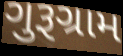
ગુરૂગ્રામ